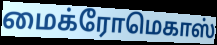
மைக்ரோமெகாஸ்